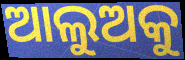
ଆଲୁଅକୁ